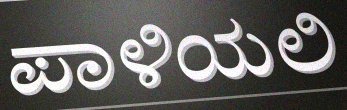
ಪಾಳಿಯಲಿ